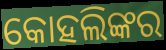
କୋହଲିଙ୍କର